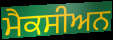
ਮੈਕਸੀਅਨ